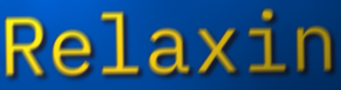
Relaxin